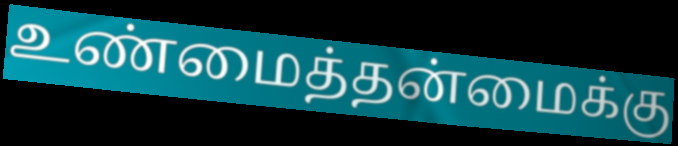
உண்மைத்தன்மைக்கு